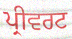
ਪ੍ਰੀਵਰਟ